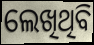
ଲେଖିଥିବି